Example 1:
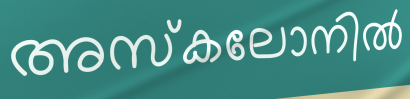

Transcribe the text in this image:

അസ്കലോനിൽ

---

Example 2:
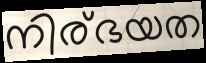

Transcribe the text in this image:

നിര്ഭയത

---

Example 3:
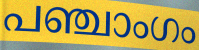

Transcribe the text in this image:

പഞ്ചാംഗം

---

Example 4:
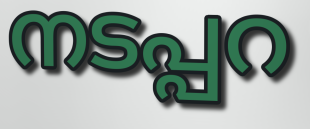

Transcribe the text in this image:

നടപ്പറ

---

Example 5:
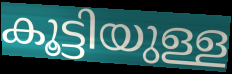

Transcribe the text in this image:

കൂട്ടിയുള്ള